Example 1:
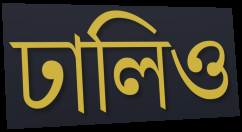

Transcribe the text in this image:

ঢালিও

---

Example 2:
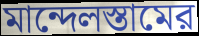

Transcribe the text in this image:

মান্দেলস্তামের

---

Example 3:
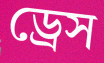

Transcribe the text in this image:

ড্রেস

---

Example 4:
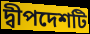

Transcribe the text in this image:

দ্বীপদেশটি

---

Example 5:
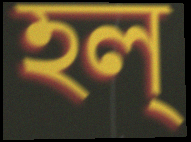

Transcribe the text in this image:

হল্